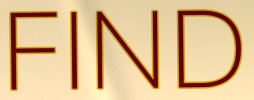
FIND